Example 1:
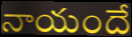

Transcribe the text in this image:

నాయందే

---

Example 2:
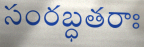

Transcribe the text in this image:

సంరబ్ధతరాః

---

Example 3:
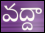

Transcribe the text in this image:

వద్దా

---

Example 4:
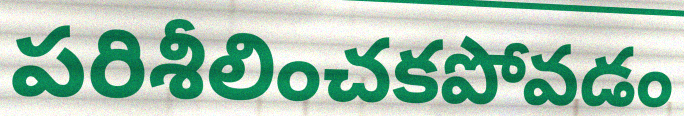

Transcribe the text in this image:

పరిశీలించకపోవడం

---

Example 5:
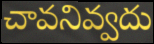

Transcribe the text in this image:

చావనివ్వదు